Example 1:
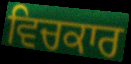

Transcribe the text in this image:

ਵਿਚਕਾਰ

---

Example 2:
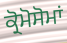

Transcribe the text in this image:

ਕ੍ਰੋਮੋਸੋਮਾਂ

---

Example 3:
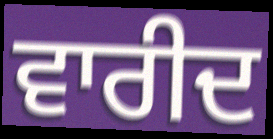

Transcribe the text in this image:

ਵਾਰੀਦ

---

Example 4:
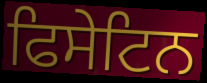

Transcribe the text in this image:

ਫਿਸੇਟਿਨ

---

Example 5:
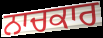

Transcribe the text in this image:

ਨਾਚਕਾਰ